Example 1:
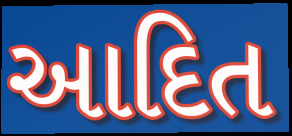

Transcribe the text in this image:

આદિત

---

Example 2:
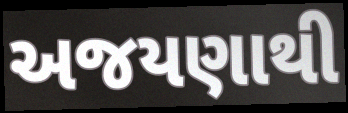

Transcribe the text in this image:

અજયણાથી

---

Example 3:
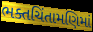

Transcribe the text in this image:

ભક્તચિંતામણિમાં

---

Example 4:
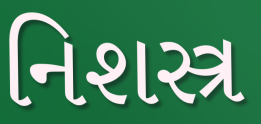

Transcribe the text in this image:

નિશસ્ત્ર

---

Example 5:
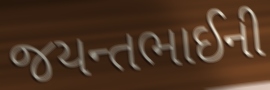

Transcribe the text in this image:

જયન્તભાઈની